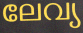
ലേവ്യ